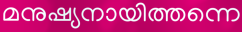
മനുഷ്യനായിത്തന്നെ